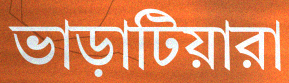
ভাড়াটিয়ারা